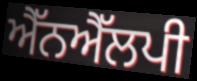
ਐੱਨਐੱਲਪੀ